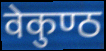
वेकुण्ठ